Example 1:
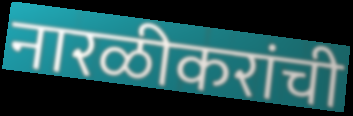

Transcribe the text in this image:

नारळीकरांची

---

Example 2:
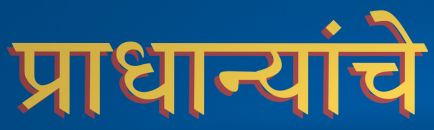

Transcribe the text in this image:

प्राधान्यांचे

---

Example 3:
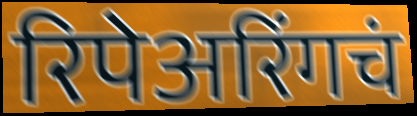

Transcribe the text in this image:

रिपेअरिंगचं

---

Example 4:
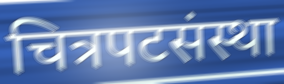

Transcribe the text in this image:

चित्रपटसंस्था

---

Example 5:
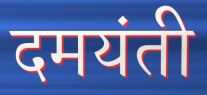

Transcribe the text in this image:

दमयंती